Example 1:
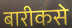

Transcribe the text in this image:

बारीकसे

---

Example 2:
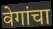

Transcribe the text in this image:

वेगांचा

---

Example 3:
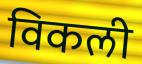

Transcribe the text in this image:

विकली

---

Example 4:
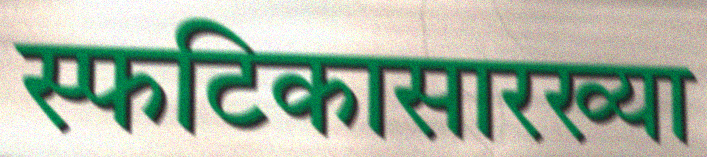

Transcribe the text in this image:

स्फटिकासारख्या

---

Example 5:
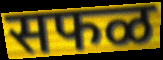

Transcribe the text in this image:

सफळ